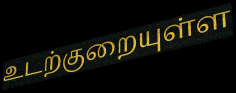
உடற்குறையுள்ள